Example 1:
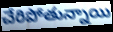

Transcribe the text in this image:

చేరిపోతున్నాయి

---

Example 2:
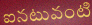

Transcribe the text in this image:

ఐనటువంటి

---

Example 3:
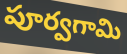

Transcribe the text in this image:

పూర్వగామి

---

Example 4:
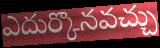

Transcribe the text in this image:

ఎదుర్కొనవచ్చు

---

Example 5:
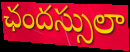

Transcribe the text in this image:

ఛందస్సులా